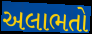
અલાભતો